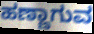
ಹಣ್ಣಾಗುವ